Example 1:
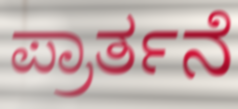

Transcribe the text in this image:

ಪ್ರಾರ್ತನೆ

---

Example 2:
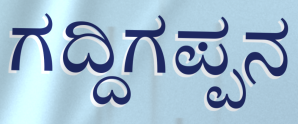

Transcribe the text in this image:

ಗದ್ದಿಗಪ್ಪನ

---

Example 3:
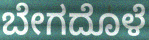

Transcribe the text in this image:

ಬೇಗದೊಳೆ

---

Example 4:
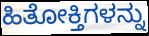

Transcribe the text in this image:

ಹಿತೋಕ್ತಿಗಳನ್ನು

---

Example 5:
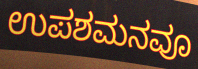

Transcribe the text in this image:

ಉಪಶಮನವೂ